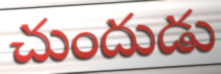
చుందుడు